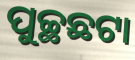
ପୁଚ୍ଛଛଟା